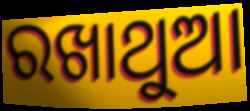
ରଖାଥୁଆ